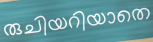
രുചിയറിയാതെ